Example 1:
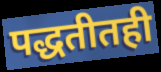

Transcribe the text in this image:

पद्धतीतही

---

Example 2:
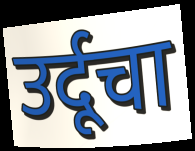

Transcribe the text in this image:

उर्दूचा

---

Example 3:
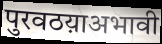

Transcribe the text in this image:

पुरवठय़ाअभावी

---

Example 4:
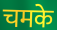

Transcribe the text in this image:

चमके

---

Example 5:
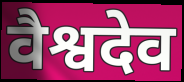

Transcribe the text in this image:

वैश्वदेव